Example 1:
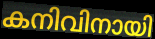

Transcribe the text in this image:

കനിവിനായി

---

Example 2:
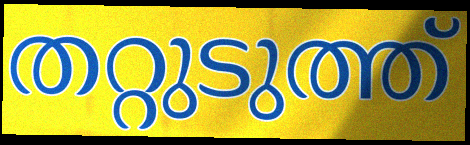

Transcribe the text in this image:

തറ്റുടുത്ത്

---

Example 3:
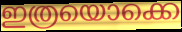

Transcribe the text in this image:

ഇത്രയൊക്കെ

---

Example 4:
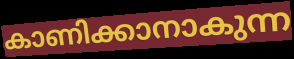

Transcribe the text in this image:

കാണിക്കാനാകുന്ന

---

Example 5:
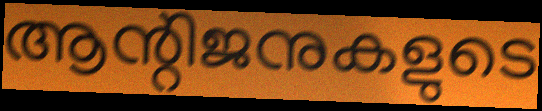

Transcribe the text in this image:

ആന്റിജനുകളുടെ